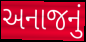
અનાજનું